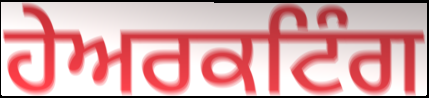
ਹੇਅਰਕਟਿੰਗ